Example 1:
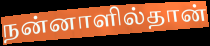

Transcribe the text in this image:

நன்னாளில்தான்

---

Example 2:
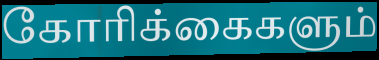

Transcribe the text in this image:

கோரிக்கைகளும்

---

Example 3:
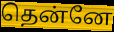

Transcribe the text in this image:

தென்னே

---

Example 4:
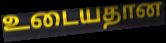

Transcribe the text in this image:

உடையதான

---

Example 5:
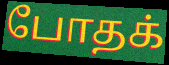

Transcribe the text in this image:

போதக்